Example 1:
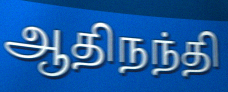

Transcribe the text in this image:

ஆதிநந்தி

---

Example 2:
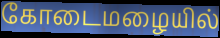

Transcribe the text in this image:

கோடைமழையில்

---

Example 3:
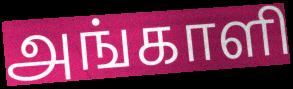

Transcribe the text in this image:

அங்காளி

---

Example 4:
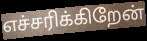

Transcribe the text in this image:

எச்சரிக்கிறேன்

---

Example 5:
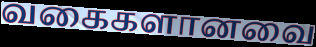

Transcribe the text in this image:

வகைகளானவை